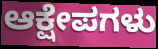
ಆಕ್ಷೇಪಗಳು